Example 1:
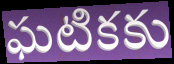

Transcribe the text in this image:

ఘటికకు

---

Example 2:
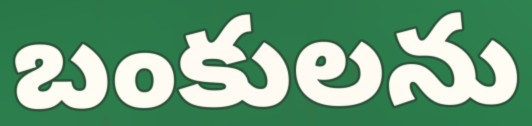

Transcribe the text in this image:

బంకులను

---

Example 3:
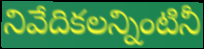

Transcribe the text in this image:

నివేదికలన్నింటినీ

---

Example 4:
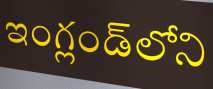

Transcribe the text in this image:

ఇంగ్లండ్‌లోని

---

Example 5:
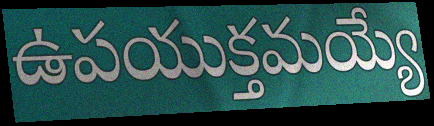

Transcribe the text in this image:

ఉపయుక్తమయ్యే